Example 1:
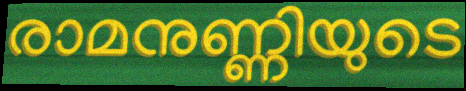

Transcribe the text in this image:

രാമനുണ്ണിയുടെ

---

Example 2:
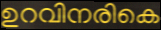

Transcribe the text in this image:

ഉറവിനരികെ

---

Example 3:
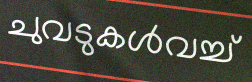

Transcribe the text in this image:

ചുവടുകൾവച്ച്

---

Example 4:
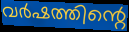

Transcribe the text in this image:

വർഷത്തിന്റെ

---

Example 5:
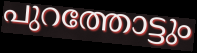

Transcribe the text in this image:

പുറത്തോട്ടും